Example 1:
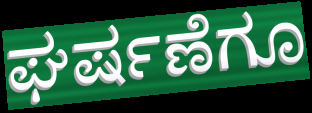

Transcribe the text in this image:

ಘರ್ಷಣೆಗೂ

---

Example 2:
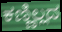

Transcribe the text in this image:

ಕಣ್ಣಿಲ್ಲದ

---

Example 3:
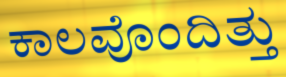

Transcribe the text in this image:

ಕಾಲವೊಂದಿತ್ತು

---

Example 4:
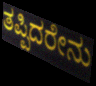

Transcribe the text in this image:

ತಪ್ಪಿದರೇನು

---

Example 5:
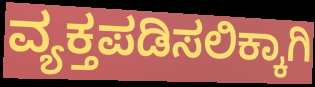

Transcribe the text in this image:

ವ್ಯಕ್ತಪಡಿಸಲಿಕ್ಕಾಗಿ